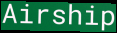
Airship